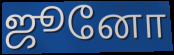
ஜூனோ